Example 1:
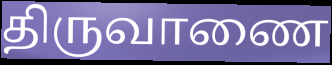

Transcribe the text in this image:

திருவாணை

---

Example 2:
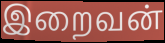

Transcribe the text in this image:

இறைவன்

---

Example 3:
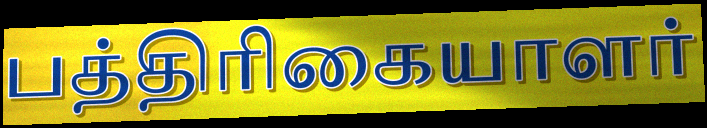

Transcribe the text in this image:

பத்திரிகையாளர்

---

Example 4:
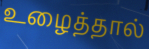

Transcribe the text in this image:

உழைத்தால்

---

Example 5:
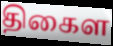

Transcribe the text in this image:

திகைள